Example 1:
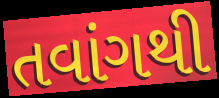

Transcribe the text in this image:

તવાંગથી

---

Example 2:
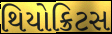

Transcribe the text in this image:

થિયોક્રિટસ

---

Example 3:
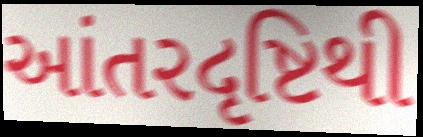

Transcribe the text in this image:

આંતરદૃષ્ટિથી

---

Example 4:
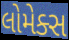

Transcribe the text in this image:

લોમેક્સ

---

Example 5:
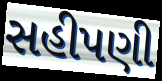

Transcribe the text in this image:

સહીપણી